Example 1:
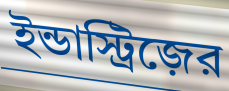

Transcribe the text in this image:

ইন্ডাস্ট্রিজ়ের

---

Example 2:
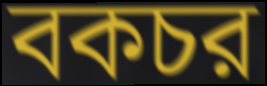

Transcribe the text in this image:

বকচর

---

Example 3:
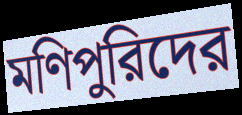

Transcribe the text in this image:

মণিপুরিদের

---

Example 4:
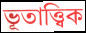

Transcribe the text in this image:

ভূতাত্ত্বিক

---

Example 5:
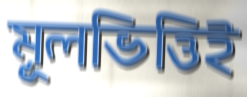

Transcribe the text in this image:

মূলভিত্তিই